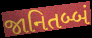
જાનિતબ્બં